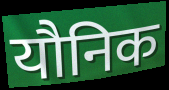
यौनिक